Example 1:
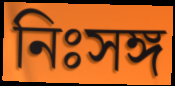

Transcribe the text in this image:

নিঃসঙ্গ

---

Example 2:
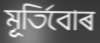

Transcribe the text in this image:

মূৰ্তিবোৰ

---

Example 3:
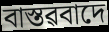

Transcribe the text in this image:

বাস্তৱবাদে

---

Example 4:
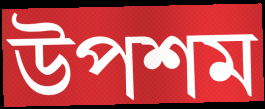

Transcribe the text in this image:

উপশম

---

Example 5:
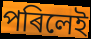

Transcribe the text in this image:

পৰিলেই